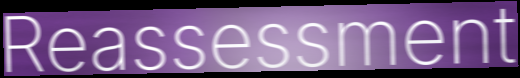
Reassessment